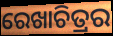
ରେଖାଚିତ୍ରର